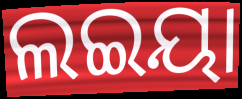
ଲଇୟା